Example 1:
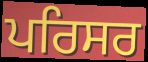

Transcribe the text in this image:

ਪਰਿਸਰ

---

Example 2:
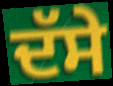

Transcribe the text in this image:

ਦੱਸੇ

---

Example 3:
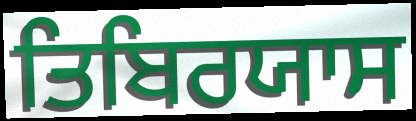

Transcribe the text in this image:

ਤਿਬਿਰਯਾਸ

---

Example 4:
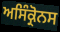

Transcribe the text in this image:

ਅਸਿੰਕ੍ਰੋਨਸ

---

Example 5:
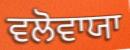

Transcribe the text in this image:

ਵਲੋਵਾਯਾ